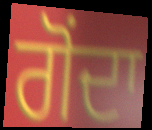
ਗੋਂਦਾ